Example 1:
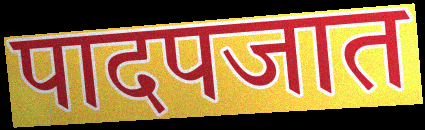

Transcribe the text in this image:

पादपजात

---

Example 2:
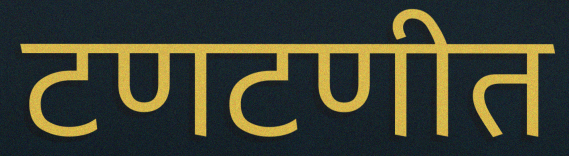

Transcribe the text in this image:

टणटणीत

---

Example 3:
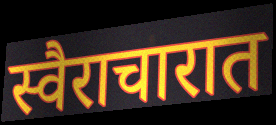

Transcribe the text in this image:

स्वैराचारात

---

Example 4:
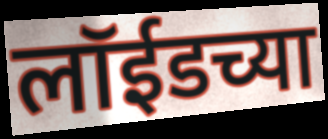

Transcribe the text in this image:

लॉईडच्या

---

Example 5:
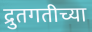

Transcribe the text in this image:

द्रुतगतीच्या